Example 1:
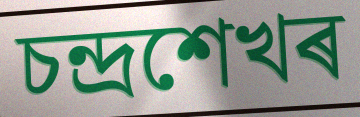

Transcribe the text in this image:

চন্দ্ৰশেখৰ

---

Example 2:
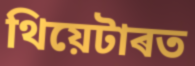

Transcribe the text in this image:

থিয়েটাৰত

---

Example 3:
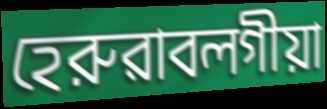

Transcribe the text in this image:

হেৰুৱাবলগীয়া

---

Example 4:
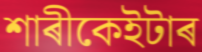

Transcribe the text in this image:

শাৰীকেইটাৰ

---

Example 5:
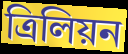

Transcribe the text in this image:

ত্ৰিলিয়ন